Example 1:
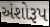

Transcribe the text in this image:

અંશોરૂપ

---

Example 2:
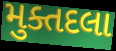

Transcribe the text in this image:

મુક્તદલા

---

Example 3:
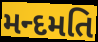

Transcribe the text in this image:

મન્દમતિ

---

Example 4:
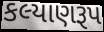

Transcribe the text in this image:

કલ્યાણરૂપ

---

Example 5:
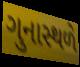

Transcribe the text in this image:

ગુનાસ્થળે